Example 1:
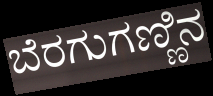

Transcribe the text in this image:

ಬೆರಗುಗಣ್ಣಿನ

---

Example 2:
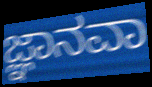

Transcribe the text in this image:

ಜ್ಞಾನವಾ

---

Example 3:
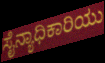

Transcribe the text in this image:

ಸೈನ್ಯಾಧಿಕಾರಿಯು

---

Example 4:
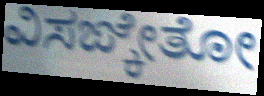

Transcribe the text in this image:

ವಿಸಙ್ಕೇತೋ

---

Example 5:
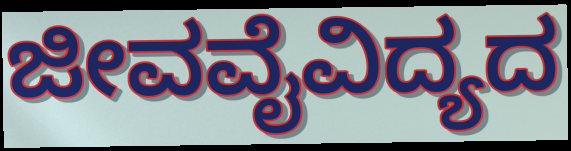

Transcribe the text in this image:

ಜೀವವೈವಿದ್ಯದ